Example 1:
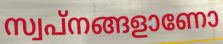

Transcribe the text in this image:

സ്വപ്നങ്ങളാണോ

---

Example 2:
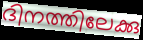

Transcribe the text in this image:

ദിനത്തിലേക്കു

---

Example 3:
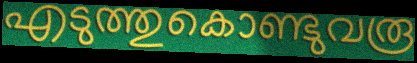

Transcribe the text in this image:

എടുത്തുകൊണ്ടുവരൂ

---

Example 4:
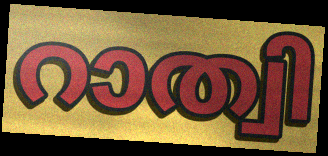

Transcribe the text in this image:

റാത്വി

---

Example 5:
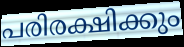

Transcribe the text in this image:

പരിരക്ഷിക്കും